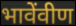
भावेंवीण